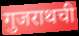
गुजराथची